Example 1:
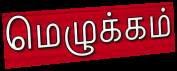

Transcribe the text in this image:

மெழுக்கம்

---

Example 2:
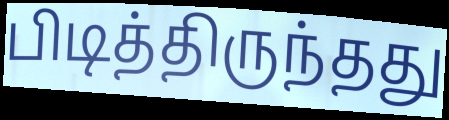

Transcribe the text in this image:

பிடித்திருந்தது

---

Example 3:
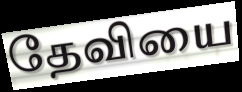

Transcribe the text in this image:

தேவியை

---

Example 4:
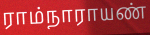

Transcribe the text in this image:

ராம்நாராயண்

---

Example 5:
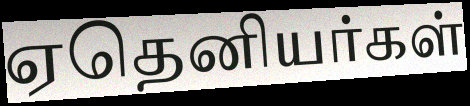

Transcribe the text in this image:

ஏதெனியர்கள்